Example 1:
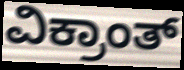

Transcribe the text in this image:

ವಿಕ್ರಾಂತ್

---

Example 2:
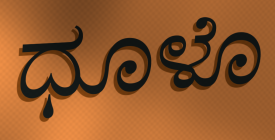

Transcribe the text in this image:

ಧೂಳೊ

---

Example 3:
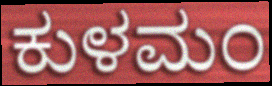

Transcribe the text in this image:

ಕುಳಮಂ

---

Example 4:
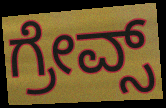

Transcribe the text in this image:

ಗ್ರೇವ್ಸ್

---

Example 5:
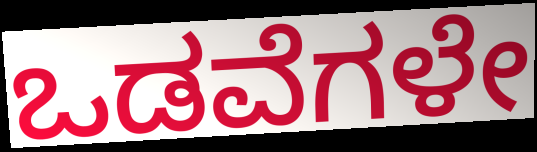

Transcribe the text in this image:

ಒಡವೆಗಳೇ